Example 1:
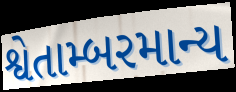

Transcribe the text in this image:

શ્વેતામ્બરમાન્ય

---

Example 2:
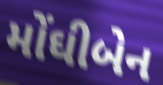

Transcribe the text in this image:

મોંઘીબેન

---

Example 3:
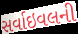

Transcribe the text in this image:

સર્વાઇવલની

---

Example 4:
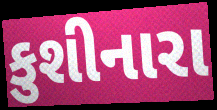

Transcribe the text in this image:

કુશીનારા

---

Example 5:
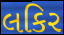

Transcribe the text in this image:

લકિર